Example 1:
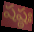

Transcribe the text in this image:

షష్ఠః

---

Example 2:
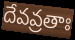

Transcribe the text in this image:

దేవవ్రతాః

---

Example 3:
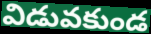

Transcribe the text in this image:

విడువకుండ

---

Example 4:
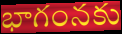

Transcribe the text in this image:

భాగంనకు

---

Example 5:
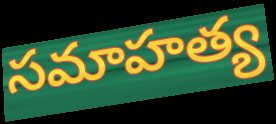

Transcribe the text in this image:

సమాహత్య